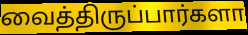
வைத்திருப்பார்களா